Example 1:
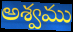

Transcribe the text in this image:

అశ్వము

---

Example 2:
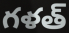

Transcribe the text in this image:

గళత్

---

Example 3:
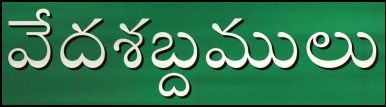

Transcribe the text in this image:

వేదశబ్దములు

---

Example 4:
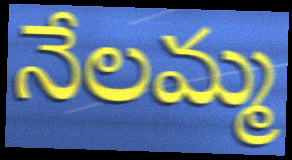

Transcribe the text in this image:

నేలమ్మ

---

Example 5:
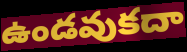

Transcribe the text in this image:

ఉండవుకదా